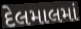
દેલમાલમાં